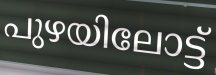
പുഴയിലോട്ട്